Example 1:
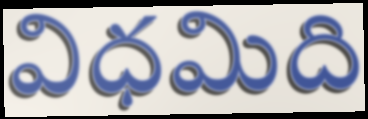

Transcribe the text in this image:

విధమిది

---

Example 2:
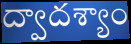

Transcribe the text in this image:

ద్వాదశ్యాం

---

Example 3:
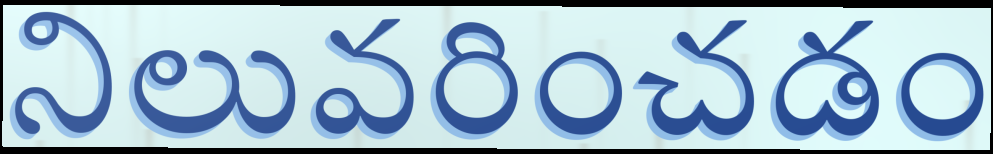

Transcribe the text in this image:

నిలువరించడం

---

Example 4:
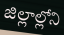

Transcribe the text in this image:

జిల్లాల్లోని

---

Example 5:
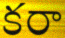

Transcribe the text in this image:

కరా